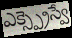
ఎక్స్ప్రెస్వే